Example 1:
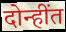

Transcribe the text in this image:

दोन्हींत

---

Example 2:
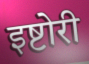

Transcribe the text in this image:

इष्टोरी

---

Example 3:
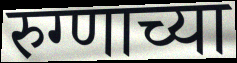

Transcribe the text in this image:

रुग्णाच्या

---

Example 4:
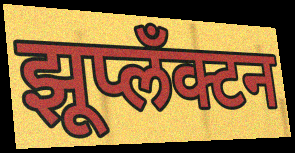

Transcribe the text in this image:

झूप्लँक्टन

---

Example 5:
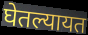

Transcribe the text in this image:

घेतल्यायत